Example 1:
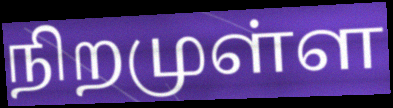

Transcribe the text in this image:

நிறமுள்ள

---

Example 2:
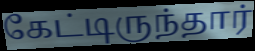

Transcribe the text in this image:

கேட்டிருந்தார்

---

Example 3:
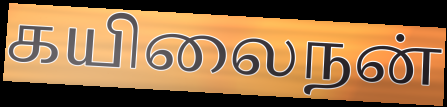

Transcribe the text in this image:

கயிலைநன்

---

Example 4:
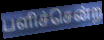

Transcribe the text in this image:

பளிச்சென்ற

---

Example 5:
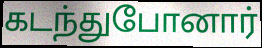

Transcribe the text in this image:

கடந்துபோனார்